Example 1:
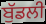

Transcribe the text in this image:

ਬੁੱਡਲੀ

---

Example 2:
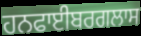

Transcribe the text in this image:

ਹਨਫਾਈਬਰਗਲਾਸ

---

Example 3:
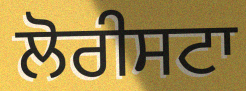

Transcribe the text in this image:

ਲੋਰੀਸਟਾ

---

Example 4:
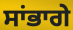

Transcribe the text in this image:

ਸਾਂਭਾਗੇ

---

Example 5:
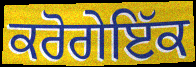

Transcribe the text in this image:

ਕਰੋਗੇਇੱਕ